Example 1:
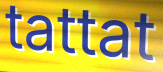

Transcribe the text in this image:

tattat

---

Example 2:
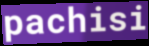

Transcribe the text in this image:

pachisi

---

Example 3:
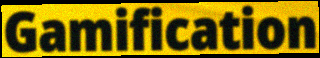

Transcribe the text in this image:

Gamification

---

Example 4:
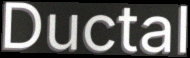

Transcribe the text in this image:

Ductal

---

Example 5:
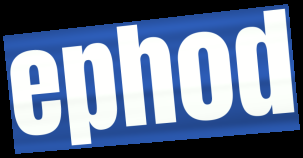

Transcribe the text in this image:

ephod